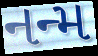
નન્મ